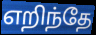
எறிந்தே